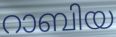
റാബിയ